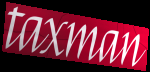
taxman